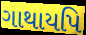
ગાથાયપિ